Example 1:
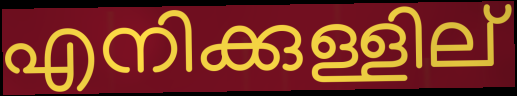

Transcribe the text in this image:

എനിക്കുള്ളില്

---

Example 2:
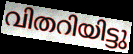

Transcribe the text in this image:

വിതറിയിട്ടു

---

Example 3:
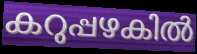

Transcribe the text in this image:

കറുപ്പഴകിൽ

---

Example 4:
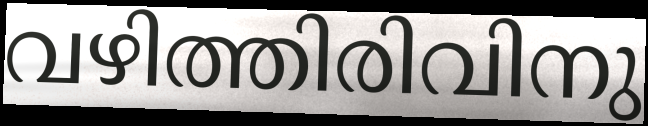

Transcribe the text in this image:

വഴിത്തിരിവിനു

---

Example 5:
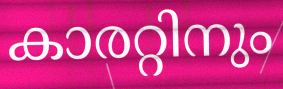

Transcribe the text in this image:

കാരറ്റിനും